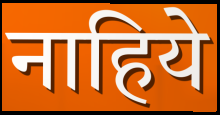
नाहिये